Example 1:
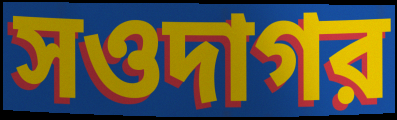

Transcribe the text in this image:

সওদাগর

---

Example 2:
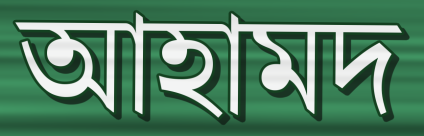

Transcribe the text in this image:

আহামদ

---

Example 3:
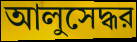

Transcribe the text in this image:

আলুসেদ্ধর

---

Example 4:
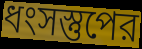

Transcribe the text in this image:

ধংসস্তুপের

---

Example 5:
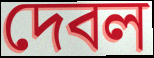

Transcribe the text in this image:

দেবল